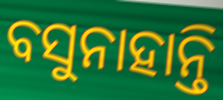
ବସୁନାହାନ୍ତି